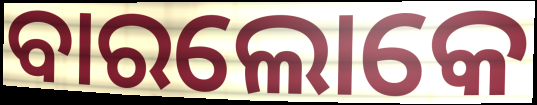
ବାରଲୋକେ